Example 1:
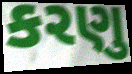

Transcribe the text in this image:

કરણુ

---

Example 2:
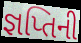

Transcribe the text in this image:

જ્ઞપ્તિની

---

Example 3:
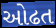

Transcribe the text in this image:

ઓઢત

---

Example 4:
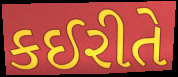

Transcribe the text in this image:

કઈરીતે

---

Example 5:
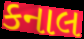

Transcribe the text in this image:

કનાલ